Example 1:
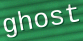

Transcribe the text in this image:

ghost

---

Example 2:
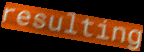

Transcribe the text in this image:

resulting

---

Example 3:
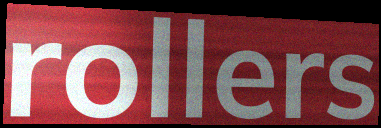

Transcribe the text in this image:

rollers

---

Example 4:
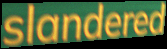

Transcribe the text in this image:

slandered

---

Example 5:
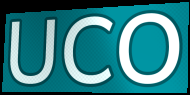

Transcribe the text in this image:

UCO